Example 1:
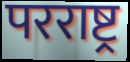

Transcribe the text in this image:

परराष्ट्र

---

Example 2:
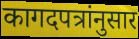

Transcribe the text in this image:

कागदपत्रांनुसार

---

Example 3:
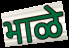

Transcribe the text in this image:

भाळे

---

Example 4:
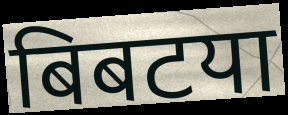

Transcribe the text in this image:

बिबटया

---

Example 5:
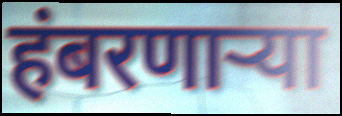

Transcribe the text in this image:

हंबरणाऱ्या